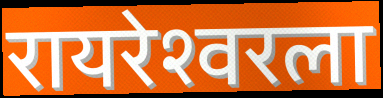
रायरेश्वरला